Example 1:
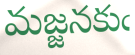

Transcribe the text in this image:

మజ్జనకుఁ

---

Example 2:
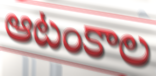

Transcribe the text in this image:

ఆటంకాల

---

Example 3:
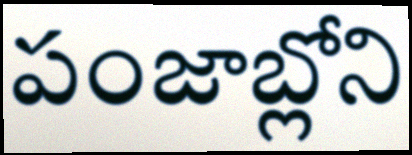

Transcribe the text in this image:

పంజాబ్లోని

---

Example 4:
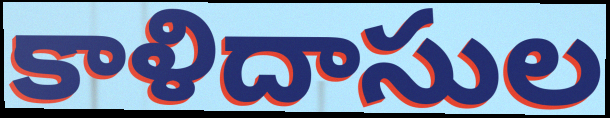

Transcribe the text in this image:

కాళిదాసుల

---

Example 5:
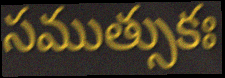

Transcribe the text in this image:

సముత్సుకః